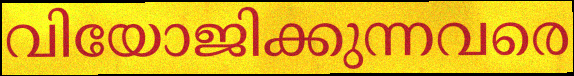
വിയോജിക്കുന്നവരെ